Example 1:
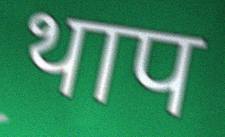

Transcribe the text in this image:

थाप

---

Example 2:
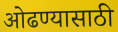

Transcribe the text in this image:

ओढण्यासाठी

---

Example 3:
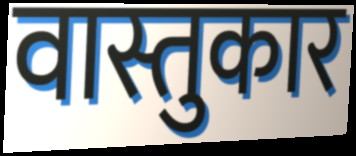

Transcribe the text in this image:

वास्तुकार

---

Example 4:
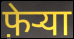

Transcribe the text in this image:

फ़ेर्‍या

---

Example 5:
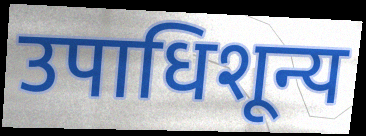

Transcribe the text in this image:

उपाधिशून्य